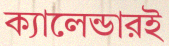
ক্যালেন্ডারই